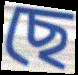
ছে